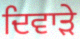
ਦਿਵਾੜੇ